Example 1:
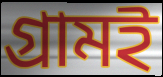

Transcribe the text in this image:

গ্রামই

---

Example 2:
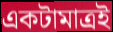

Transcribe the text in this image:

একটামাত্রই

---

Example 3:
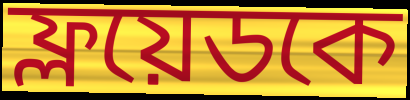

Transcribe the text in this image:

ফ্লয়েডকে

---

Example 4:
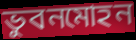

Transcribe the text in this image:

ভুবনমোহন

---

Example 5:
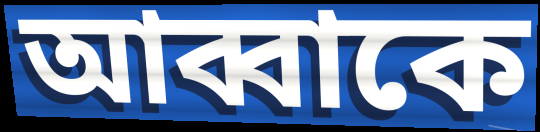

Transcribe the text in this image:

আব্বাকে